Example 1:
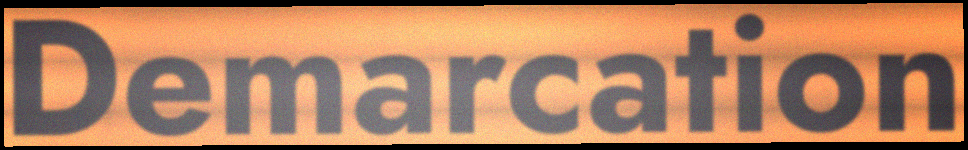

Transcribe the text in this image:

Demarcation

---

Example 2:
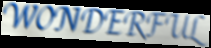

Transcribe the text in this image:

WONDERFUL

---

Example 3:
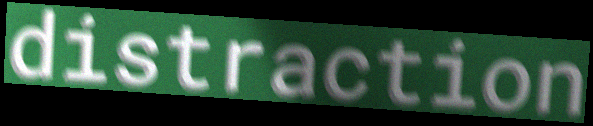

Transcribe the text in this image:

distraction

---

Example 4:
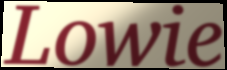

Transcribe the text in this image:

Lowie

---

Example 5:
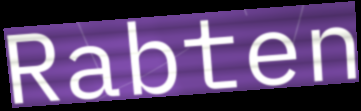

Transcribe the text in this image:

Rabten